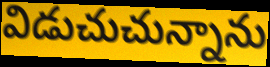
విడుచుచున్నాను